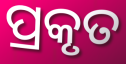
ପ୍ରକୃତ